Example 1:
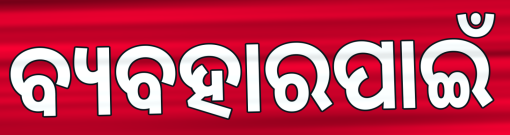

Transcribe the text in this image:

ବ୍ୟବହାରପାଇଁ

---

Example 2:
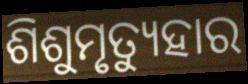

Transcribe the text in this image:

ଶିଶୁମୃତ୍ୟୁହାର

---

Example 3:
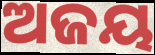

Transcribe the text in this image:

ଅଜୟ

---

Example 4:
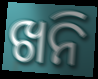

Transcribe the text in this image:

ଖନି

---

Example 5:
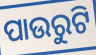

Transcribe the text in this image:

ପାଉରୁଟି